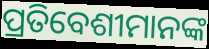
ପ୍ରତିବେଶୀମାନଙ୍କ